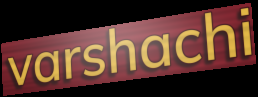
varshachi